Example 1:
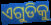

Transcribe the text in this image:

ଏଗୁଡିକୁ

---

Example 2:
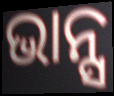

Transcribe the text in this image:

ଭାନ୍ସ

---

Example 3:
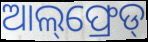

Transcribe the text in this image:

ଆଲ୍‌ଫ୍ରେଡ୍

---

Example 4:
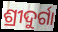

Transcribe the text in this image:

ଶ୍ରୀଦୁର୍ଗା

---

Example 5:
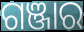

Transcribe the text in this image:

ଗଞ୍ଜାର